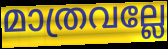
മാത്രവല്ലേ